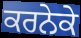
ਕਰਨੇਕੇ